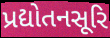
પ્રદ્યોતનસૂરિ